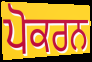
ਪੋਕਰਨ